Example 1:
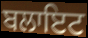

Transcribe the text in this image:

ਬਲਾਇਟ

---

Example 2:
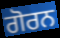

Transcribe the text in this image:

ਗੋਰਨ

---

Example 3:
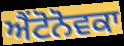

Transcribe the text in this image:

ਐਂਟੋਨੋਵਕਾ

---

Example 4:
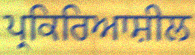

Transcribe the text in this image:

ਪ੍ਰਕਿਰਿਆਸ਼ੀਲ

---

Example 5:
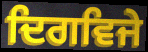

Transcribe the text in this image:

ਦਿਗਵਿਜੇ